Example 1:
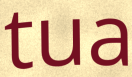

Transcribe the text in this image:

tua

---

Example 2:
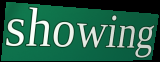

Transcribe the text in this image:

showing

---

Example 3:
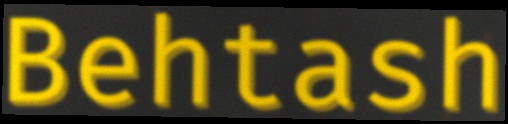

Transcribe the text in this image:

Behtash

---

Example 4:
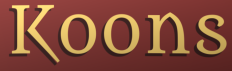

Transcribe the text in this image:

Koons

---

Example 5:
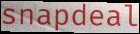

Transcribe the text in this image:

snapdeal